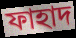
ফাহাদ